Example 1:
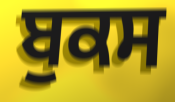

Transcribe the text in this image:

ਬੁਕਸ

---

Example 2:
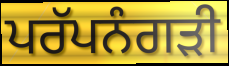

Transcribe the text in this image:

ਪਰੱਪਨੰਗੜੀ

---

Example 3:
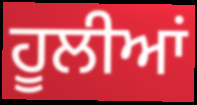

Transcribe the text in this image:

ਹੂਲੀਆਂ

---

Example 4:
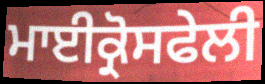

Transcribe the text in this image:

ਮਾਈਕ੍ਰੋਸਫੇਲੀ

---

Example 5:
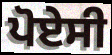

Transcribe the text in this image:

ਪੋਏਸੀ